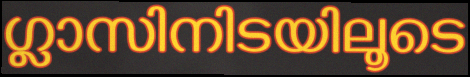
ഗ്ലാസിനിടയിലൂടെ